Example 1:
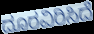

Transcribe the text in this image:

ದೂರವಿರಿಸಿದೆ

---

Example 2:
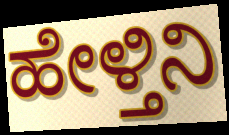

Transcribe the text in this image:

ಹೇಳ್ತಿನಿ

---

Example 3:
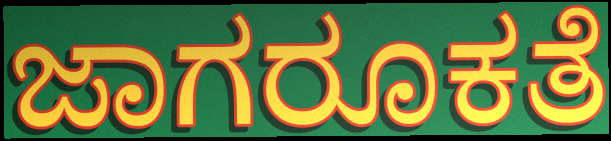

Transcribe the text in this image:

ಜಾಗರೂಕತೆ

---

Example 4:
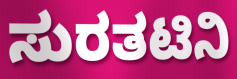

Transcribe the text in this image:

ಸುರತಟಿನಿ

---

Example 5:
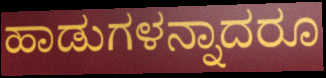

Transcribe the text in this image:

ಹಾಡುಗಳನ್ನಾದರೂ